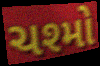
ચશ્મો